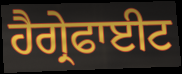
ਹੈਗ੍ਰੇਫਾਈਟ